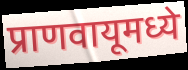
प्राणवायूमध्ये